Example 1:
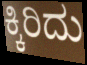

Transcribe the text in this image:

ಕ್ಕಿರಿದು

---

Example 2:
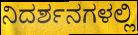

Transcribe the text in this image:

ನಿದರ್ಶನಗಳಲ್ಲಿ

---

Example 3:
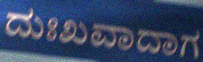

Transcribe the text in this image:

ದುಃಖವಾದಾಗ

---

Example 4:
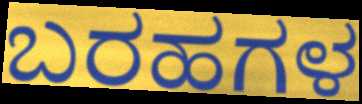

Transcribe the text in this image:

ಬರಹಗಳ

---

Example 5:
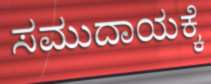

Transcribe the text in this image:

ಸಮುದಾಯಕ್ಕೆ